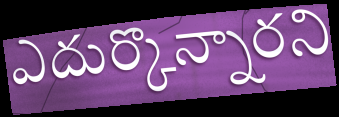
ఎదుర్కొన్నారని